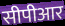
सीपीआर